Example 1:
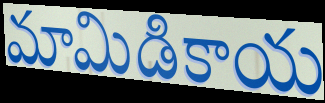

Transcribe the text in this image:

మామిడికాయ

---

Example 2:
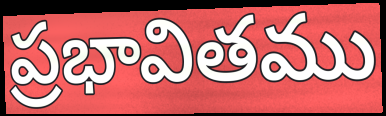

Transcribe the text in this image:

ప్రభావితము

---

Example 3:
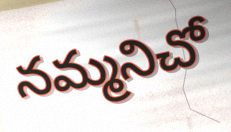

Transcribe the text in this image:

నమ్మనిచో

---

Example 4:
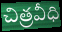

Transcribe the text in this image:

చిత్రవీధి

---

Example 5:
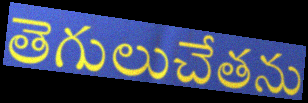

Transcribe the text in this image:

తెగులుచేతను